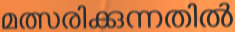
മത്സരിക്കുന്നതിൽ